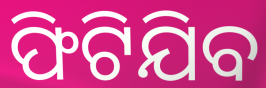
ଫିଟିଯିବ